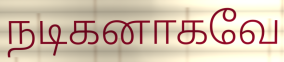
நடிகனாகவே